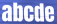
abcde